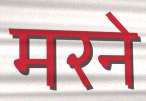
मरने